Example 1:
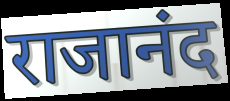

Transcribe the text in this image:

राजानंद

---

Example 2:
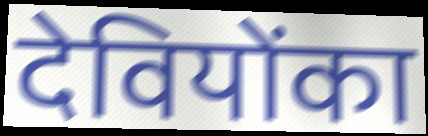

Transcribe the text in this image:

देवियोंका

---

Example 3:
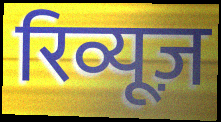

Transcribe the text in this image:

रिव्यूज़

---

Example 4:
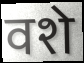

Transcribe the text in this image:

वशे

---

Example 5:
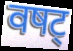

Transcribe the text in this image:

वषट्